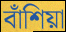
বাঁশিয়া